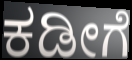
ಕಡೀಗೆ